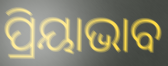
ପ୍ରିୟାଭାବ